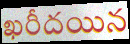
ఖరీదయిన